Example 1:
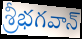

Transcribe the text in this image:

శ్రీభగవాన్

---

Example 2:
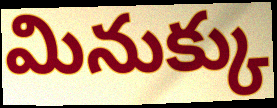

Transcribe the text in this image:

మినుక్కు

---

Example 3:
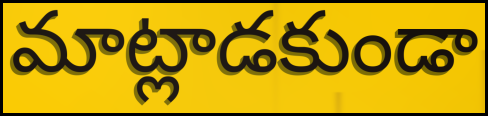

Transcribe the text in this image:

మాట్లాడకుండా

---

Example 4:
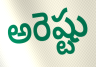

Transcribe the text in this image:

అరెష్టు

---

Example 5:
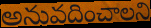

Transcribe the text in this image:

అనువదించాలని